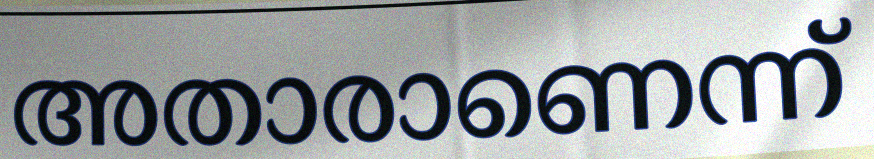
അതാരാണെന്ന്